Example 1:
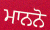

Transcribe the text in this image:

ਮਾਨਨੋ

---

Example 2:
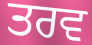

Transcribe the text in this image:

ਤਰਵ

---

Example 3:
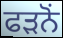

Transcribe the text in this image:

ਫੜਨੋਂ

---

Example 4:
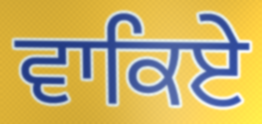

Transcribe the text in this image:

ਵਾਕਿਏ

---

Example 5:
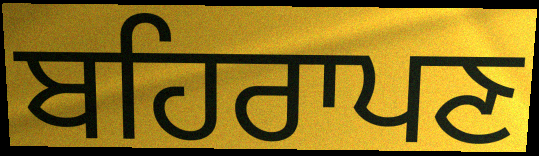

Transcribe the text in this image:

ਬਹਿਰਾਪਣ